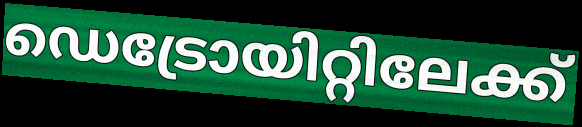
ഡെട്രോയിറ്റിലേക്ക്